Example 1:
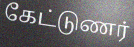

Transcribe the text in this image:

கேட்டுணர்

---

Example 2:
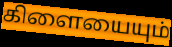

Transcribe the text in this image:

கிளையையும்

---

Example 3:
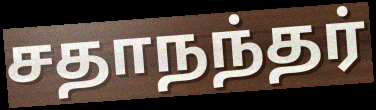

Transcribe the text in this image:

சதாநந்தர்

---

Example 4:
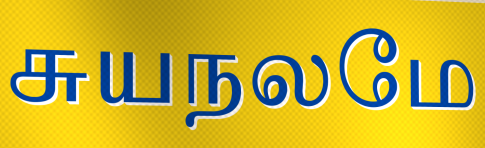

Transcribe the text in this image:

சுயநலமே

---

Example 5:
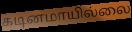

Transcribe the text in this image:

கடினமாயில்லை